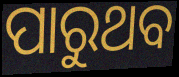
ପାରୁଥବ